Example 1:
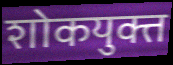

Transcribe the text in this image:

शोकयुक्त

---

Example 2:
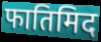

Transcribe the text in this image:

फातिमिद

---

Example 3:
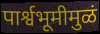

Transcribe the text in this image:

पार्श्वभूमीमुळं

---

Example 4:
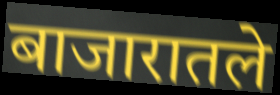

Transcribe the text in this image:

बाजारातले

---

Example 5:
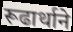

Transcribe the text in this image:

रूढार्थाने